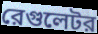
রেগুলেটর